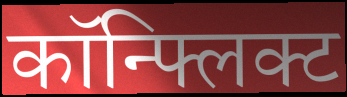
कॉन्फ्लिक्ट